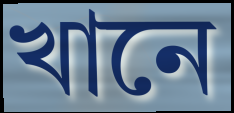
খানে